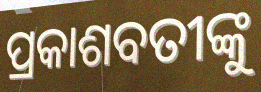
ପ୍ରକାଶବତୀଙ୍କୁ